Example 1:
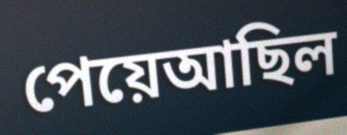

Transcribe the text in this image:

পেয়েআছিল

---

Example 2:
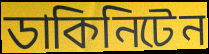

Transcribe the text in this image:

ডাকিনিটেন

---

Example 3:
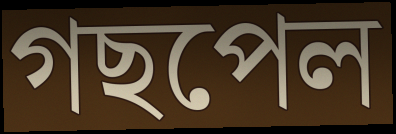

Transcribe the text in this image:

গছপেল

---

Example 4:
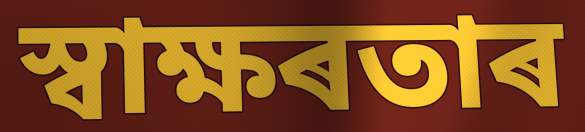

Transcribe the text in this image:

স্বাক্ষৰতাৰ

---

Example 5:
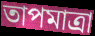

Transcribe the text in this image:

তাপমাত্ৰা